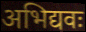
अभिद्यवः